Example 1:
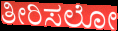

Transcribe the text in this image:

ತೀರಿಸಲೋ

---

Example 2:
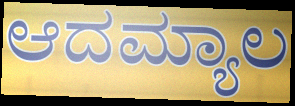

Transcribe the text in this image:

ಆದಮ್ಯಾಲ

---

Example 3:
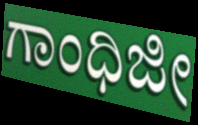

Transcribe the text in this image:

ಗಾಂಧಿಜೀ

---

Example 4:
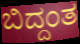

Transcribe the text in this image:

ಬಿದ್ದಂತ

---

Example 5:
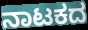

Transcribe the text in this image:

ನಾಟಕದ